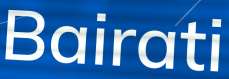
Bairati